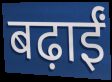
बढ़ाईं